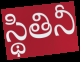
స్థితినీ